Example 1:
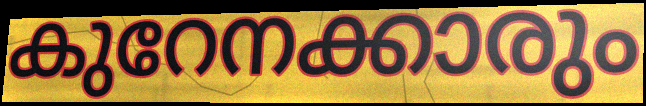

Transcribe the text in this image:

കുറേനക്കാരും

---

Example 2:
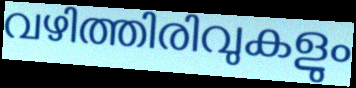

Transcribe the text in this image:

വഴിത്തിരിവുകളും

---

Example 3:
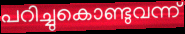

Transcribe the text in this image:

പറിച്ചുകൊണ്ടുവന്ന്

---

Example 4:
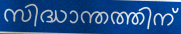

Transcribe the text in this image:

സിദ്ധാന്തത്തിന്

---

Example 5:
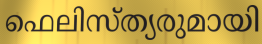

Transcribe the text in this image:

ഫെലിസ്ത്യരുമായി